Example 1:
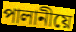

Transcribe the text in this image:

পালানীয়ে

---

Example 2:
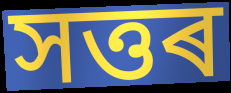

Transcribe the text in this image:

সত্তৰ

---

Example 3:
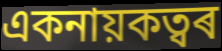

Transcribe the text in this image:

একনায়কত্বৰ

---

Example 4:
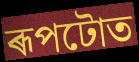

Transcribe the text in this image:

ৰূপটোত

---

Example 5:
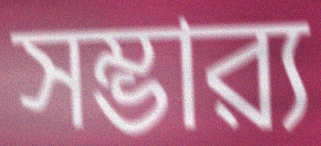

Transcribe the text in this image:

সম্ভাৱ্য